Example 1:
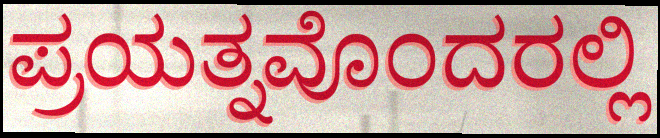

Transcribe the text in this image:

ಪ್ರಯತ್ನವೊಂದರಲ್ಲಿ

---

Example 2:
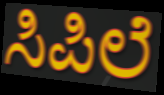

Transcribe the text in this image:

ಸಿಪಿಲೆ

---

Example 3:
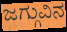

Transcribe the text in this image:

ಜಗ್ಗುವಿನ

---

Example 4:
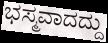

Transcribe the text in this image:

ಭಸ್ಮವಾದದ್ದು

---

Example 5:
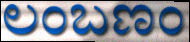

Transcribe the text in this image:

ಲಂಬಣಂ